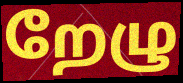
றேழு